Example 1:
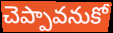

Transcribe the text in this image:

చెప్పావనుకో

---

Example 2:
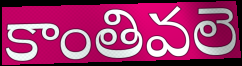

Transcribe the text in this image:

కాంతివలె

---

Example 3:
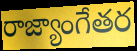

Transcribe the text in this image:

రాజ్యాంగేతర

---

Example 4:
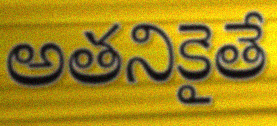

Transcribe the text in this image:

అతనికైతే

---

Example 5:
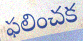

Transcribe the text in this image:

ఫలించక